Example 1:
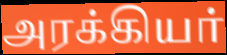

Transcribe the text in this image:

அரக்கியர்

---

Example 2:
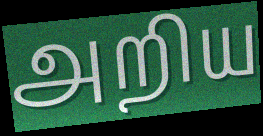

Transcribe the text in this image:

அறிய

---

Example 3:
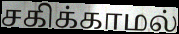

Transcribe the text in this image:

சகிக்காமல்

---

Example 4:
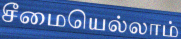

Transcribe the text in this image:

சீமையெல்லாம்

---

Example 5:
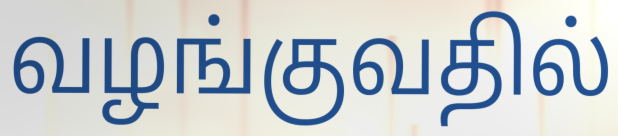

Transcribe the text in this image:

வழங்குவதில்